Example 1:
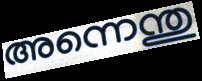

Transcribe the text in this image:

അന്നെന്തു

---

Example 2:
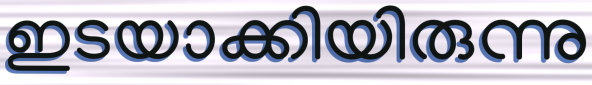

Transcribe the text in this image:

ഇടയാക്കിയിരുന്നു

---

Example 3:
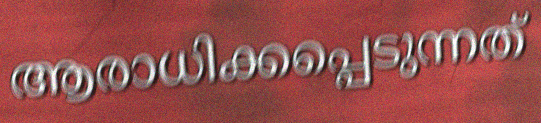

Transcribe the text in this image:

ആരാധിക്കപ്പെടുന്നത്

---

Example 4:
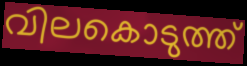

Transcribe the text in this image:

വിലകൊടുത്ത്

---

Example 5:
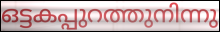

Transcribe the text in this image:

ഒട്ടകപ്പുറത്തുനിന്നു